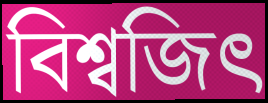
বিশ্বজিৎ